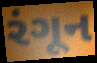
રંગૂન